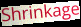
Shrinkage